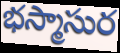
భస్మాసుర